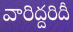
వారిద్దరిదీ